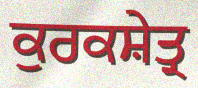
ਕੁਰਕਸ਼ੇਤ੍ਰ